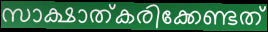
സാക്ഷാത്കരിക്കേണ്ടത്